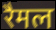
रैमल